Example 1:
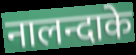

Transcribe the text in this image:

नालन्दाके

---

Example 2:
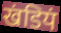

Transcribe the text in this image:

खंडियं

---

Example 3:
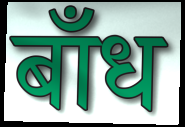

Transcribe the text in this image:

बाँध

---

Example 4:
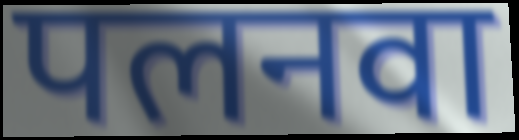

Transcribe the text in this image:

पलनवा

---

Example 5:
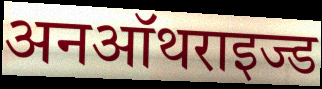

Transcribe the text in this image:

अनऑथराइज्ड